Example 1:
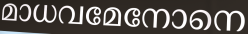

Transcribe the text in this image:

മാധവമേനോനെ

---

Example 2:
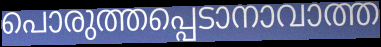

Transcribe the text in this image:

പൊരുത്തപ്പെടാനാവാത്ത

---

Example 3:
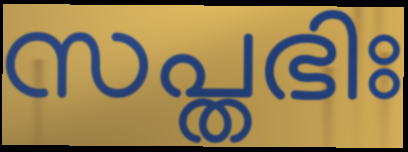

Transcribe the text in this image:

സപ്തഭിഃ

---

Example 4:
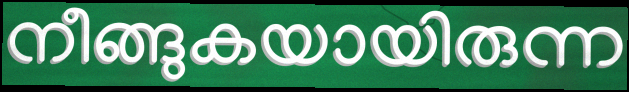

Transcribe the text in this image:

നീങ്ങുകയായിരുന്ന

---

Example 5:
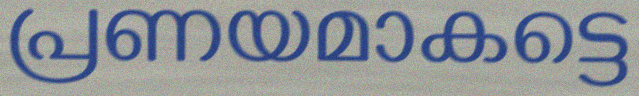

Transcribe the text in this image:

പ്രണയമാകട്ടെ